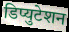
डिप्युटेशन